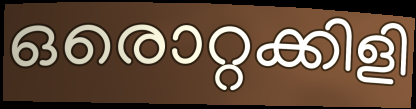
ഒരൊറ്റക്കിളി